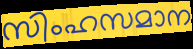
സിംഹസമാന